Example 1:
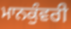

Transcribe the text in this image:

ਮਾਨਕੁੰਵਰੀ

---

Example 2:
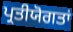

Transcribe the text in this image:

ਪ੍ਰਤੀਯੋਗਤਾਂ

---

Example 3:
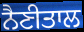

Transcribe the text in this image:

ਨੈਣੀਤਾਲ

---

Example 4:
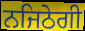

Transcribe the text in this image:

ਨਜਿਠੇਗੀ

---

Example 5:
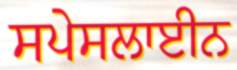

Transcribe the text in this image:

ਸਪੇਸਲਾਈਨ